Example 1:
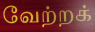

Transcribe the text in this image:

வேற்றக்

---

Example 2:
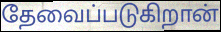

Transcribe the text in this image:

தேவைப்படுகிறான்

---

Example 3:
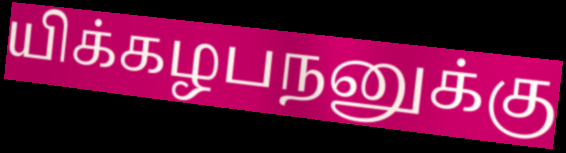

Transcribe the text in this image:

யிக்கழபநனுக்கு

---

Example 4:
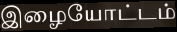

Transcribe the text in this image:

இழையோட்டம்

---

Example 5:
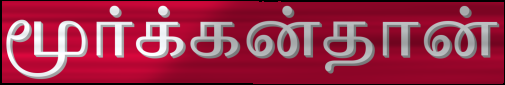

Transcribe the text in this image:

மூர்க்கன்தான்